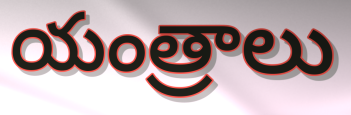
యంత్రాలు